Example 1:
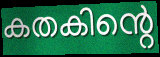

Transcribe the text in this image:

കതകിന്റെ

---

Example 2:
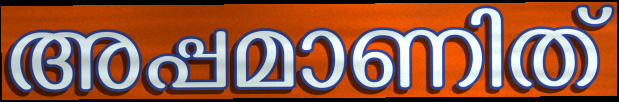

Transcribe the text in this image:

അപ്പമാണിത്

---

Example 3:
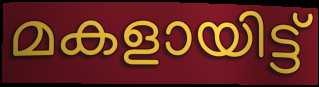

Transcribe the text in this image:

മകളായിട്ട്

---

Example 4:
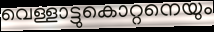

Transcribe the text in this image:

വെള്ളാട്ടുകൊറ്റനെയും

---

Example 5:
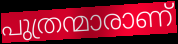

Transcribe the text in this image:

പുത്രന്മാരാണ്